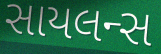
સાયલન્સ